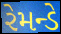
રેમન્ડે